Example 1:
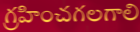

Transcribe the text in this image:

గ్రహించగలగాలి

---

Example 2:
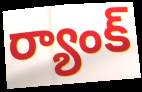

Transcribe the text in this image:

ర్యాంక్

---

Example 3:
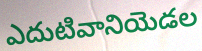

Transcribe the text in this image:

ఎదుటివానియెడల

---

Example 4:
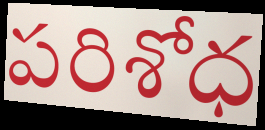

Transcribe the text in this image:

పరిశోధ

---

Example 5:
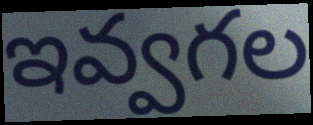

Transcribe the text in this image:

ఇవ్వగల